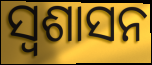
ସ୍ବଶାସନ